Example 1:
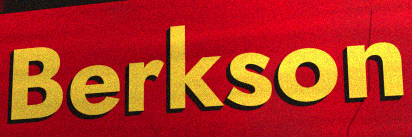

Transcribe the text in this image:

Berkson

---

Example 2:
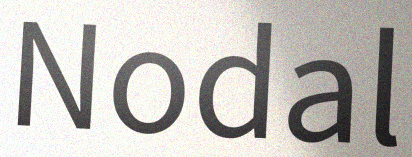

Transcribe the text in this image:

Nodal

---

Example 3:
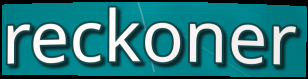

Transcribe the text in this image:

reckoner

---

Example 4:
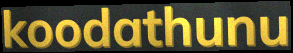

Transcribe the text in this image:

koodathunu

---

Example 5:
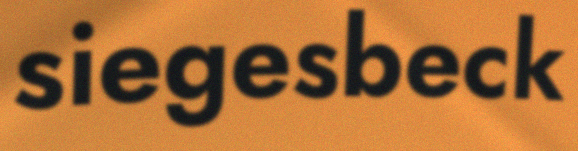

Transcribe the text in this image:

siegesbeck